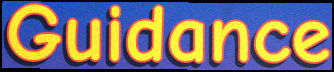
Guidance